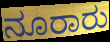
ನೂರಾರು